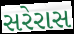
સરેરાસ